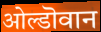
ओल्डॊवान